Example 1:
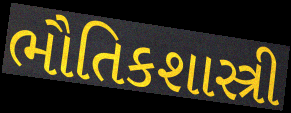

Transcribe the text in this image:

ભૌતિકશાસ્ત્રી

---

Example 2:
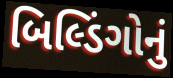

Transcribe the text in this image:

બિલ્ડિંગોનું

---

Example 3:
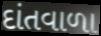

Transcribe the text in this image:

દાંતવાળા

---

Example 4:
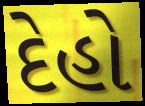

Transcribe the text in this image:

દેહો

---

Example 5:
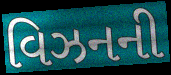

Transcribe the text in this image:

વિઝનની